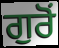
ਗੁਰੋਂ